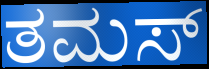
ತಮಸ್